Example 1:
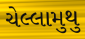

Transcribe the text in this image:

ચેલ્લામુથુ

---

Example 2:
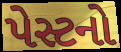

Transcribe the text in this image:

પેસ્ટનો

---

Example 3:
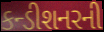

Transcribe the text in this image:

કન્ડીશનરની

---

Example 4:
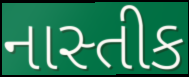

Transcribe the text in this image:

નાસ્તીક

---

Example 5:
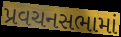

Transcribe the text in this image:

પ્રવચનસભામાં